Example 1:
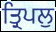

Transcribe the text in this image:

ਤ੍ਰਿਪਲੁ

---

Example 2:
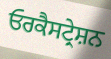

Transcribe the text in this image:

ਓਰਕੈਸਟ੍ਰੇਸ਼ਨ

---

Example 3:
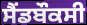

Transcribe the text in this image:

ਸੈਂਡਬੌਕਸੀ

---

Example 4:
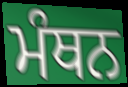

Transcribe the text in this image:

ਮੰਥਨ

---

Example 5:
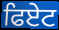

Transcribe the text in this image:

ਫਿਏਟ